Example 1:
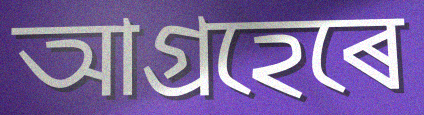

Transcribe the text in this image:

আগ্ৰহেৰে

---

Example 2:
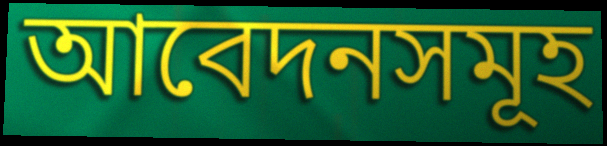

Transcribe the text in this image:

আবেদনসমূহ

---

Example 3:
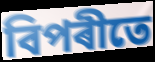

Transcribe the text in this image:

বিপৰীতে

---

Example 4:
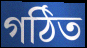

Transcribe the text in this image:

গঠিত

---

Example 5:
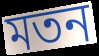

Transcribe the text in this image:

মতন